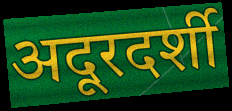
अदूरदर्शी